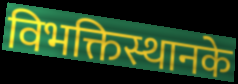
विभक्तिस्थानके